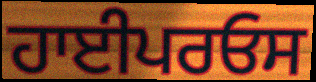
ਹਾਈਪਰਓਸ